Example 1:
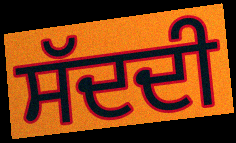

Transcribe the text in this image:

ਸੱਦਦੀ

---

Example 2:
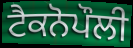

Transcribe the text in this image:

ਟੈਕਨੋਪੌਲੀ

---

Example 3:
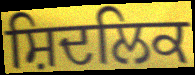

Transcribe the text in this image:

ਸ਼ਿਦਲਿਕ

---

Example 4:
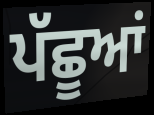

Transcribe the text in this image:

ਪੱਛੂਆਂ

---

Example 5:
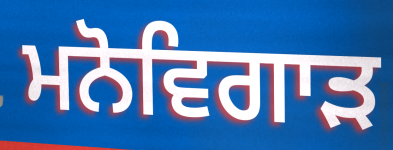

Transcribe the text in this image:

ਮਨੋਵਿਗਾੜ